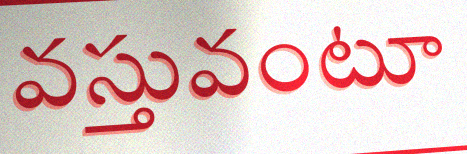
వస్తువంటూ